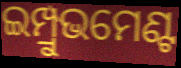
ଇମ୍ପ୍ରୁଭମେଣ୍ଟ